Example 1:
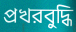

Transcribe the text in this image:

প্রখরবুদ্ধি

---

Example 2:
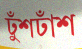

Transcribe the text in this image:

ঢুঁশঢাঁশ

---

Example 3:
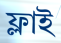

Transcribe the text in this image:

ফ্লাই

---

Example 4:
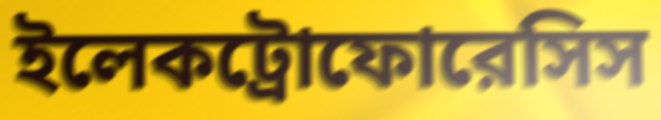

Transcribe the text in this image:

ইলেকট্রোফোরেসিস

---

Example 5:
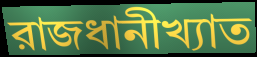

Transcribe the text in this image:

রাজধানীখ্যাত